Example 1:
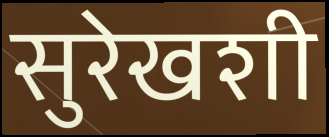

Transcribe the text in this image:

सुरेखशी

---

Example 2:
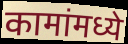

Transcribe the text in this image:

कामांमध्ये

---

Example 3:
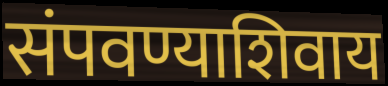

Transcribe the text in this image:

संपवण्याशिवाय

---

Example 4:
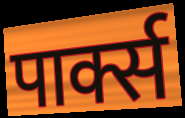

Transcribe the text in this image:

पार्क्स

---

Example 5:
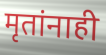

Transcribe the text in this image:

मृतांनाही